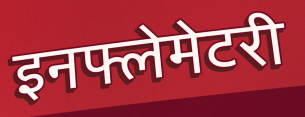
इनफ्लेमेटरी